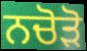
ਨਚੋੜੋ